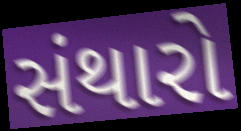
સંથારો